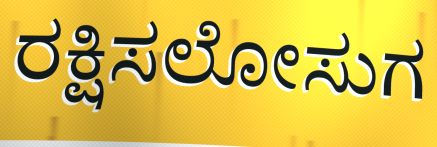
ರಕ್ಷಿಸಲೋಸುಗ